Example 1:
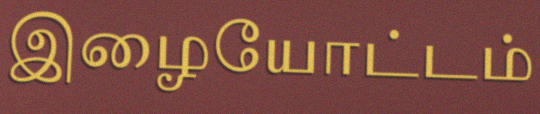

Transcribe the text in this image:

இழையோட்டம்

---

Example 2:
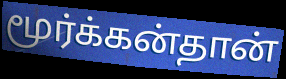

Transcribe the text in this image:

மூர்க்கன்தான்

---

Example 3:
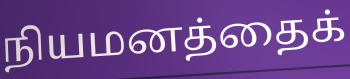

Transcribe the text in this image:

நியமனத்தைக்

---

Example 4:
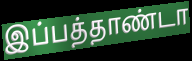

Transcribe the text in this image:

இப்பத்தாண்டா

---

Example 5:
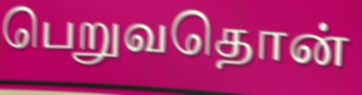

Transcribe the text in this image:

பெறுவதொன்